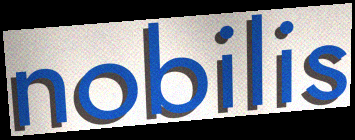
nobilis